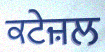
ਕਟੇਜ਼ਲ